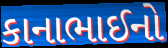
કાનાભાઈનો